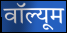
वॉल्यूम